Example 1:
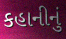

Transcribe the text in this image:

કહાનીનું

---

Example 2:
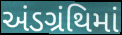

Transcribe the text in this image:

અંડગ્રંથિમાં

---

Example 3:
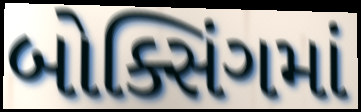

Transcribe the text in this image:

બોક્સિંગમાં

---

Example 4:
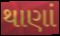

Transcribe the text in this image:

થાણાં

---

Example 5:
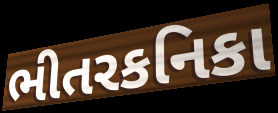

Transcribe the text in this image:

ભીતરકનિકા